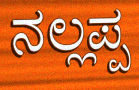
ನಲ್ಲಪ್ಪ